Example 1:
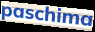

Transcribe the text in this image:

paschima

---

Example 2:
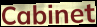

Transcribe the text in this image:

Cabinet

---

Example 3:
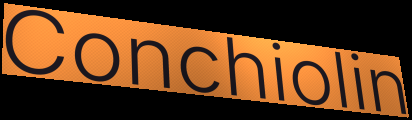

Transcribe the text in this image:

Conchiolin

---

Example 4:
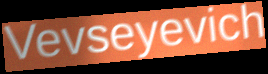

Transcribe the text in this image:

Vevseyevich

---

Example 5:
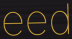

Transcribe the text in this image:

eed